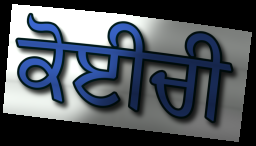
ਕੋਈਚੀ